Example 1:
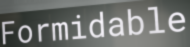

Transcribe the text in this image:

Formidable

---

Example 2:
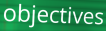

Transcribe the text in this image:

objectives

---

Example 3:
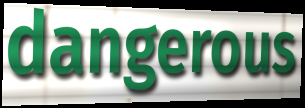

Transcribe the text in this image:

dangerous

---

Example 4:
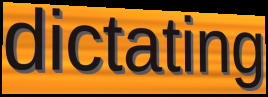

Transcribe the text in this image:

dictating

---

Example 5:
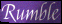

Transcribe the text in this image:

Rumble